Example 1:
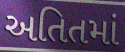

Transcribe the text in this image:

અતિતમાં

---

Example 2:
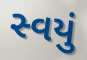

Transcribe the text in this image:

સ્વયું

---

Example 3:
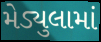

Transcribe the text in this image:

મેડ્યુલામાં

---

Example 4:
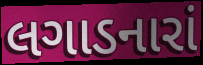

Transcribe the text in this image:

લગાડનારાં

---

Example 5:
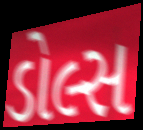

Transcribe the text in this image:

ડોલ્સ